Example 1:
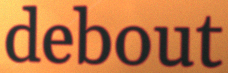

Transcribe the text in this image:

debout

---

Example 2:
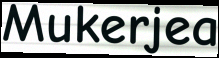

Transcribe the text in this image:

Mukerjea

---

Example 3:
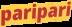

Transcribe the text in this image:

paripari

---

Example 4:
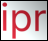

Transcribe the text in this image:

ipr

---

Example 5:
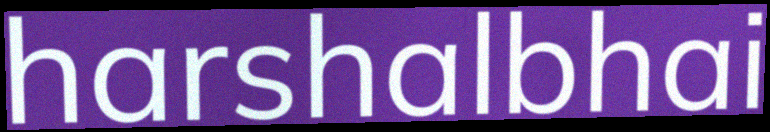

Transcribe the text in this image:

harshalbhai